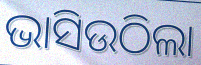
ଭାସିଉଠିଲା